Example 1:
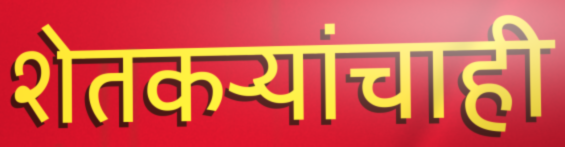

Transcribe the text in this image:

शेतकऱ्यांचाही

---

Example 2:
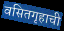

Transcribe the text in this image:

वसितगृहाची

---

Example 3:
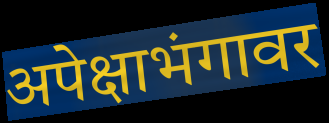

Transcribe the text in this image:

अपेक्षाभंगावर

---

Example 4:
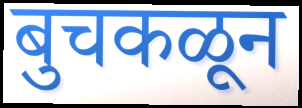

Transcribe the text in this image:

बुचकळून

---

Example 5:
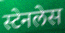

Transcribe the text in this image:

स्टेनलेस